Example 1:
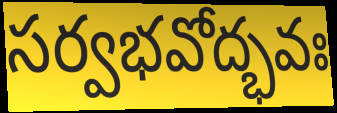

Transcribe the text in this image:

సర్వభవోద్భవః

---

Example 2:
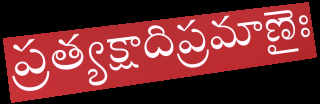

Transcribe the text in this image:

ప్రత్యక్షాదిప్రమాణైః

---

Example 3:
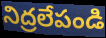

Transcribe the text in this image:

నిద్రలేపండి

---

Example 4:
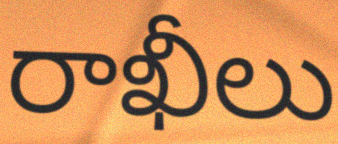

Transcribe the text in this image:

రాఖీలు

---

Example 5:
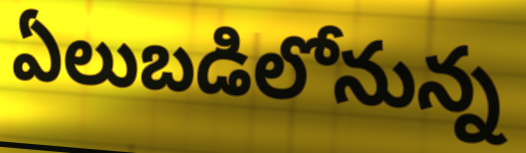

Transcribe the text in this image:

ఏలుబడిలోనున్న